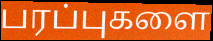
பரப்புகளை